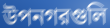
উপনগরগুলি